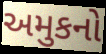
અમુકનો